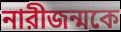
নারীজন্মকে